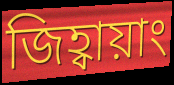
জিহ্বায়াং